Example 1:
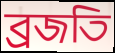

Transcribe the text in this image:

ব্রজতি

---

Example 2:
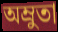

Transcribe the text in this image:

অম্রুতা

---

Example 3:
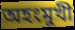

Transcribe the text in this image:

অহংমুখী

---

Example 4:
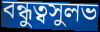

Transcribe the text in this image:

বন্ধুত্বসুলভ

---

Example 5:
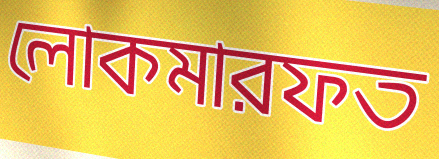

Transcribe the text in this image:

লোকমারফত